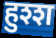
हुश्श